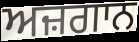
ਅਜ਼ਗਾਨ